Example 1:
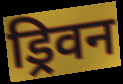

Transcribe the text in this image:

ड्रिवन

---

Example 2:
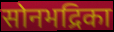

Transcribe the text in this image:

सोनभद्रिका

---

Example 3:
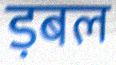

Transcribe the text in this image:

ड़बल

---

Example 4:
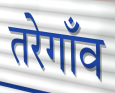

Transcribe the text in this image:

तरेगाँव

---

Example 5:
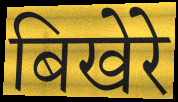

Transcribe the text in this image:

बिखेरे